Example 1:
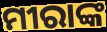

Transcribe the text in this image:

ମୀରାଙ୍କ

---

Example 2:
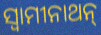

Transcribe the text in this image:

ସ୍ୱାମୀନାଥନ୍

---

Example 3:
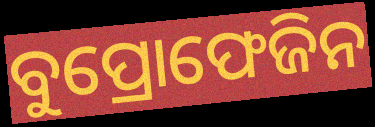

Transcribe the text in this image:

ବୁପ୍ରୋଫେଜିନ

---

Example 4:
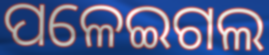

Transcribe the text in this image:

ପଳେଇଗଲ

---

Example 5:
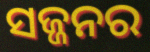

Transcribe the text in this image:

ସଜ୍ଜନର